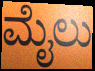
ಮೈಲು